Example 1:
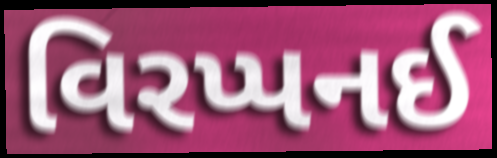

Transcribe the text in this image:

વિરપ્પનઈ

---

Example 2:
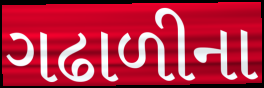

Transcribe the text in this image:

ગઢાળીના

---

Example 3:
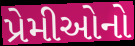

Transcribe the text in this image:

પ્રેમીઓનો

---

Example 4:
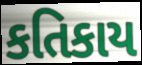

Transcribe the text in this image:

કતિકાય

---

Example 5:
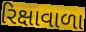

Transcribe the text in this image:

રિક્ષાવાળા